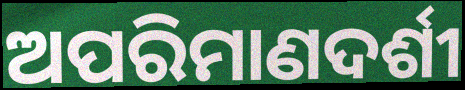
ଅପରିମାଣଦର୍ଶୀ